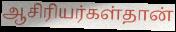
ஆசிரியர்கள்தான்